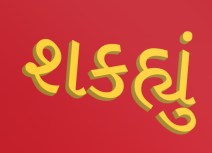
શકહ્યું